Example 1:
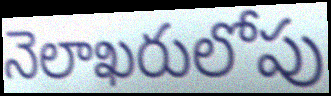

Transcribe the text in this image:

నెలాఖరులోపు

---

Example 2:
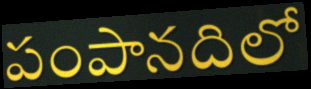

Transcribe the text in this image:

పంపానదిలో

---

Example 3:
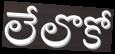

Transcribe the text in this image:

లేలొకో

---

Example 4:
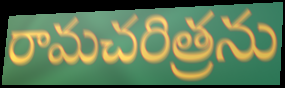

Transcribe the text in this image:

రామచరిత్రను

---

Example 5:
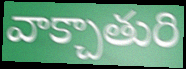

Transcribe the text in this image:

వాక్చాతురి